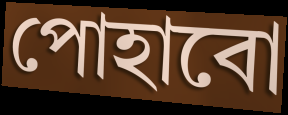
পোহাবো